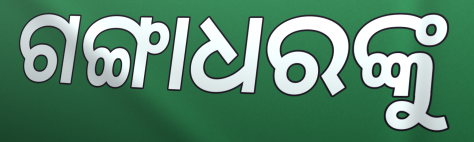
ଗଙ୍ଗାଧରଙ୍କୁ